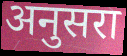
अनुसरा